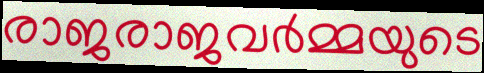
രാജരാജവർമ്മയുടെ